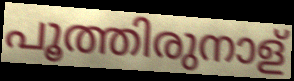
പൂത്തിരുനാള്